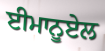
ਈਮਾਨੂਏਲ